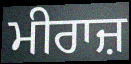
ਮੀਰਾਜ਼